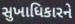
સુખાધિકારને